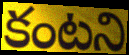
కంటని